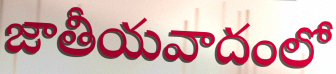
జాతీయవాదంలో